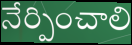
నేర్పించాలి